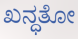
ಖನ್ಧತೋ